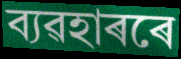
ব্যৱহাৰৰে